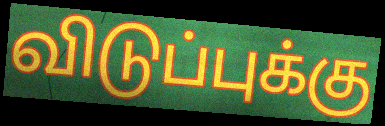
விடுப்புக்கு